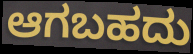
ಆಗಬಹದು